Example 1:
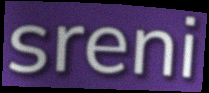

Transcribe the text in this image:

sreni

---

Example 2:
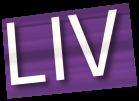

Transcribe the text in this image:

LIV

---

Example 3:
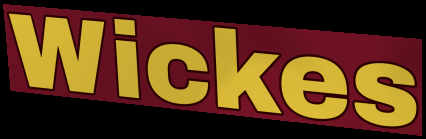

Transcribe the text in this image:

Wickes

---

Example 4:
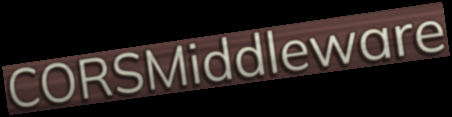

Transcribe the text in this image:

CORSMiddleware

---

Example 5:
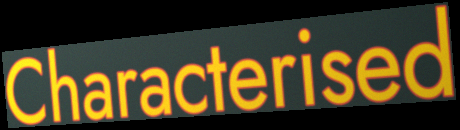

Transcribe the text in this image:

Characterised